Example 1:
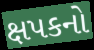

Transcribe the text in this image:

ક્ષપકનો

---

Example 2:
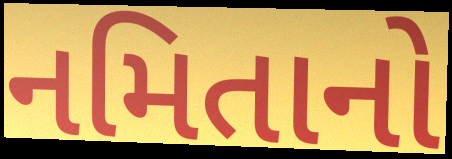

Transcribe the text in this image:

નમિતાનો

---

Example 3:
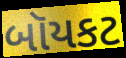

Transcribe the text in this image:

બૉયકટ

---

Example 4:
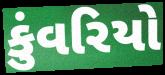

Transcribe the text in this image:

કુંવરિયો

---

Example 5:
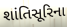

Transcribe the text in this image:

શાંતિસૂરિના